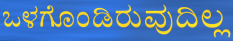
ಒಳಗೊಂಡಿರುವುದಿಲ್ಲ